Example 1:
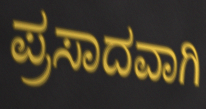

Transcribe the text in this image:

ಪ್ರಸಾದವಾಗಿ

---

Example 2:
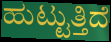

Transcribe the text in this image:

ಹುಟ್ಟುತ್ತಿದೆ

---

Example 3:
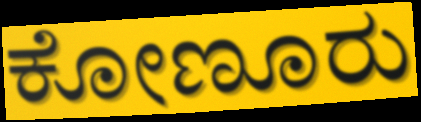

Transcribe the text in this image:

ಕೋಣೂರು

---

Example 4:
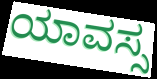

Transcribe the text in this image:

ಯಾವಸ್ಸ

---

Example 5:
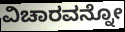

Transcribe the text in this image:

ವಿಚಾರವನ್ನೋ